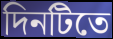
দিনটিতে